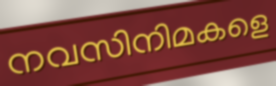
നവസിനിമകളെ